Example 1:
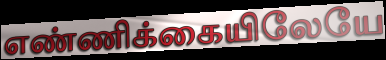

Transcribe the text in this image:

எண்ணிக்கையிலேயே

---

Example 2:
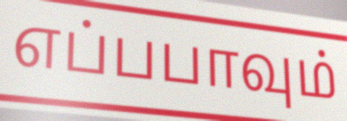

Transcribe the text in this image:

எப்பபாவும்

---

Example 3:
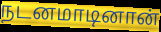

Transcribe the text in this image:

நடனமாடினான்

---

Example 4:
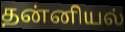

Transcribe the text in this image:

தன்னியல்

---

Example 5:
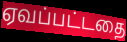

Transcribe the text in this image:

ஏவப்பட்டதை